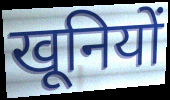
खूनियों